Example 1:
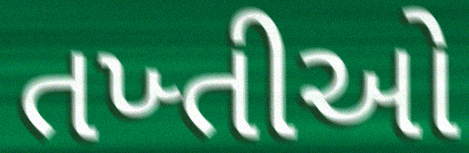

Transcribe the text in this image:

તખ્તીઓ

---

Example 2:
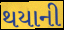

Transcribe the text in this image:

થયાની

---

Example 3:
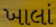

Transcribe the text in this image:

ખાલાં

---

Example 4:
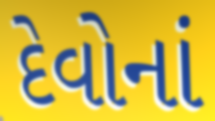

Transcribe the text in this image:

દેવોનાં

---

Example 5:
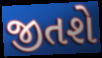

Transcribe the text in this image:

જીતશે